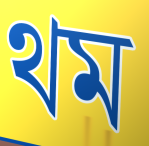
থম